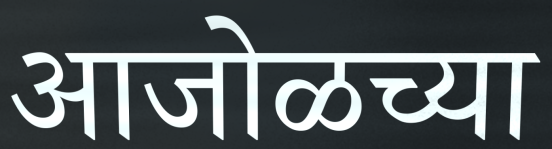
आजोळच्या